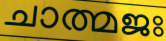
ചാത്മജഃ